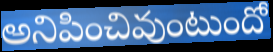
అనిపించివుంటుందో